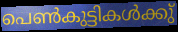
പെൺകുട്ടികൾക്കു്